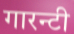
गारन्टी